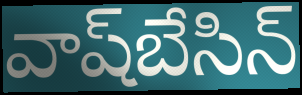
వాష్‌బేసిన్